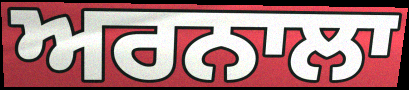
ਅਰਨਾਲਾ